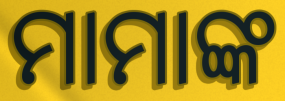
ମାମାଙ୍କ